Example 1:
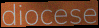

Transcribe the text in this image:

diocese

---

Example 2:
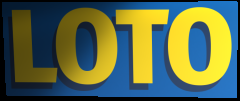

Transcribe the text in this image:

LOTO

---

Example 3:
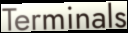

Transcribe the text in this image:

Terminals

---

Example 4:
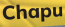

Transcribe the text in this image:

Chapu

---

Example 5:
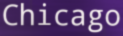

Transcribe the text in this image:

Chicago